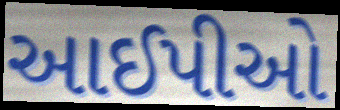
આઈપીઓ